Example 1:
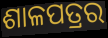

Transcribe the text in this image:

ଶାଳପତ୍ରର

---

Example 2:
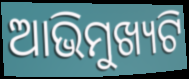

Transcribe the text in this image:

ଆଭିମୁଖ୍ୟଟି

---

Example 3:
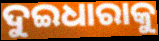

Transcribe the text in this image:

ଦୁଇଧାରାକୁ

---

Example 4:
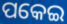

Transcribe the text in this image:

ପକେଇ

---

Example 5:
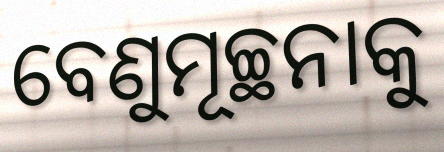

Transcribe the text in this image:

ବେଣୁମୂଚ୍ଛନାକୁ